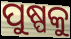
ପୁଷ୍ପକୁ